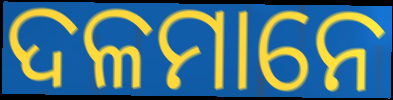
ଦଳମାନେ